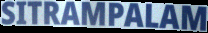
SITRAMPALAM